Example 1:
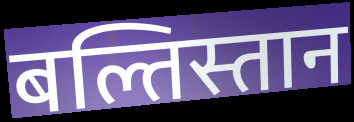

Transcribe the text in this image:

बल्तिस्तान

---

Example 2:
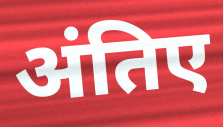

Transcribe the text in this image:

अंतिए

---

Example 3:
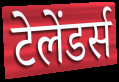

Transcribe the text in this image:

टेलेंडर्स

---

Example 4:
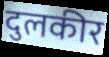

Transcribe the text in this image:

दुलकीर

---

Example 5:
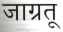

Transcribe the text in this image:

जाग्रतू